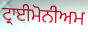
ਟ੍ਰਾਈਮੋਨੀਅਮ